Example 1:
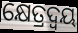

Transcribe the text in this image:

କ୍ଷେତ୍ରଦ୍ଵୟ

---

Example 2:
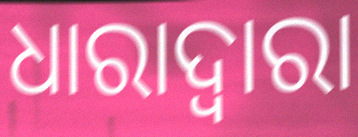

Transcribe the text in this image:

ଧାରାଦ୍ୱାରା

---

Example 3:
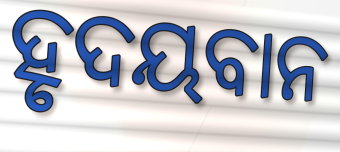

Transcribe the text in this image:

ହୃଦୟବାନ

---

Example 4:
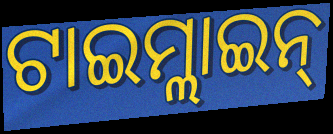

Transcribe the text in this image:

ଟାଇମ୍ଲାଇନ୍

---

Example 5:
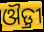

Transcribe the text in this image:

ଔଡ଼୍ରୀ